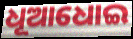
ଧୂଆଧୋଇ